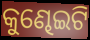
କୁଣ୍ଢେଇଟି